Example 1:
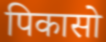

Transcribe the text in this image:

पिकासो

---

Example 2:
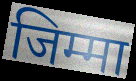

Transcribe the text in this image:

जिम्मा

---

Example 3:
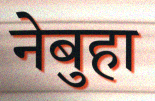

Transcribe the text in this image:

नेबुहा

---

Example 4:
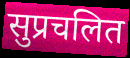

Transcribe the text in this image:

सुप्रचलित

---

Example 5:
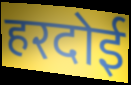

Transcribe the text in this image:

हरदोई